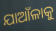
ଯାଆଁଳାକୁ